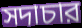
সদাচার